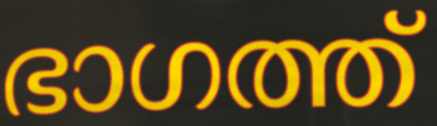
ഭാഗത്ത്